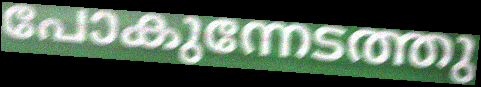
പോകുന്നേടത്തു